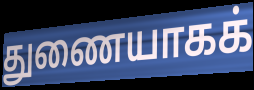
துணையாகக்